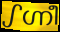
ഽഗ്നീ